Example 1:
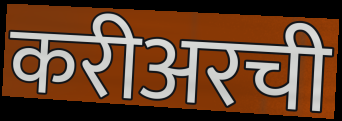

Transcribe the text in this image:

करीअरची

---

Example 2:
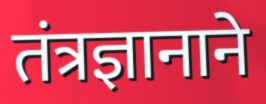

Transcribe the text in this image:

तंत्रज्ञानाने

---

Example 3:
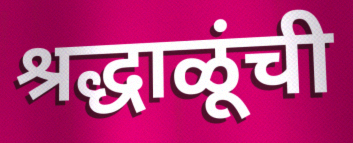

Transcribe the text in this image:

श्रद्धाळूंची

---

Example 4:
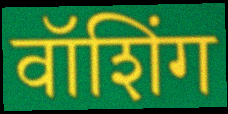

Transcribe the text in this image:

वॉशिंग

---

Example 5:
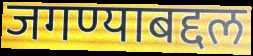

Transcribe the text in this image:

जगण्याबद्दल